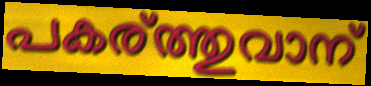
പകര്ത്തുവാന്